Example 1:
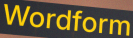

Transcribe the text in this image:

Wordform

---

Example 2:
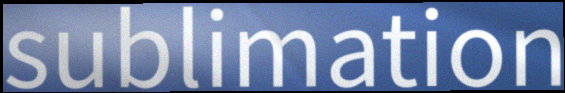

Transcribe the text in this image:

sublimation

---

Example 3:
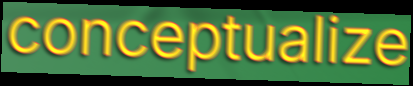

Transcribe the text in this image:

conceptualize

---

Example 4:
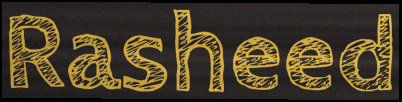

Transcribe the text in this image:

Rasheed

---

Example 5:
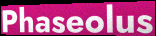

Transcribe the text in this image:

Phaseolus